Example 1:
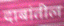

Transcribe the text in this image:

दाबांतील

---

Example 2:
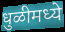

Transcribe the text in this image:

धुळीमध्ये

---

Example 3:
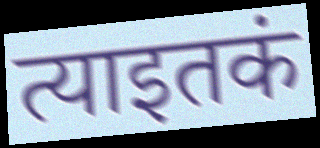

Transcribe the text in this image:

त्याइतकं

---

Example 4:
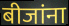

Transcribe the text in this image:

बीजांना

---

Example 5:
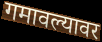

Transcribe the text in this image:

गमावल्यावर